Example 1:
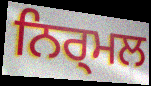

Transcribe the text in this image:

ਨਿਰ੍ਮਲ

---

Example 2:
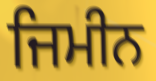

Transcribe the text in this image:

ਜਿਮੀਨ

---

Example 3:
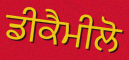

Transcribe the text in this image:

ਡੀਕੈਮੀਲੋ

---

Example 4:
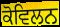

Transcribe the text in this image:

ਕੋਵਿਲਨ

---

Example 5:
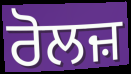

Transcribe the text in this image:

ਰੋਲਜ਼